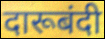
दारूबंदी